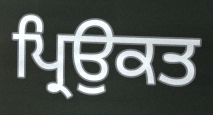
ਪ੍ਰਿਉਕਤ